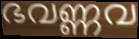
ഭവണ്ണവ